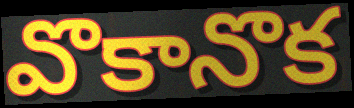
వొకానొక